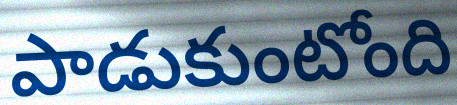
పాడుకుంటోంది